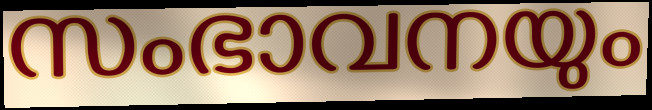
സംഭാവനയും